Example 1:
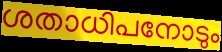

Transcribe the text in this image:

ശതാധിപനോടും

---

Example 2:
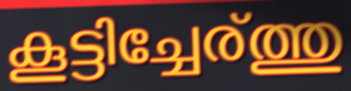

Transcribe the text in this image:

കൂട്ടിച്ചേര്ത്തു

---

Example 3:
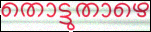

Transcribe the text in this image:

തൊട്ടുതാഴെ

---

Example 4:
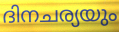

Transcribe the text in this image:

ദിനചര്യയും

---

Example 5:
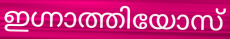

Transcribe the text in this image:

ഇഗ്നാത്തിയോസ്